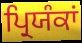
ਪ੍ਰਿਯੰਕਾਂ